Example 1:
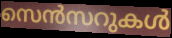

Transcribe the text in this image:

സെൻസറുകൾ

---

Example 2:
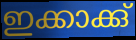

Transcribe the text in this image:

ഇക്കാക്കു്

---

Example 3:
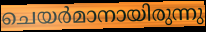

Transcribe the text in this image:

ചെയർമാനായിരുന്നു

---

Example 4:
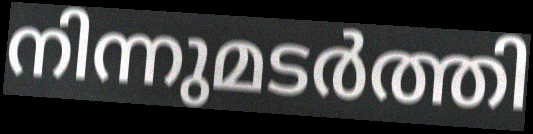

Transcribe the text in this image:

നിന്നുമടർത്തി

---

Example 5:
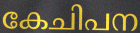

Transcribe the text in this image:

കേചിപന